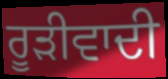
ਰੂੜੀਵਾਦੀ